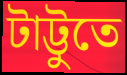
টাট্টুতে